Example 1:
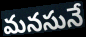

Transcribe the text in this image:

మనసునే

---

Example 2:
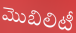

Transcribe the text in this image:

మొబిలిటీ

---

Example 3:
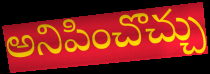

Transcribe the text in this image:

అనిపించొచ్చు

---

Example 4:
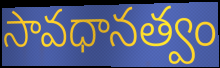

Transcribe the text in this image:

సావధానత్వం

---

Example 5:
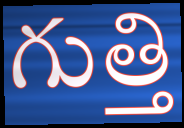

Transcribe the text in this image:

గుత్తి